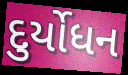
દુર્યોધન